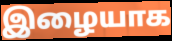
இழையாக